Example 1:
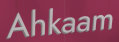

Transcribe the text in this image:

Ahkaam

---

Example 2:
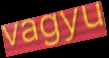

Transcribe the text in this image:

vagyu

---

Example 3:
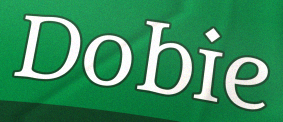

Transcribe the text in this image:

Dobie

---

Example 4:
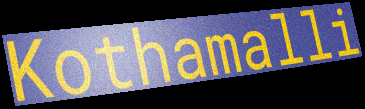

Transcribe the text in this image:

Kothamalli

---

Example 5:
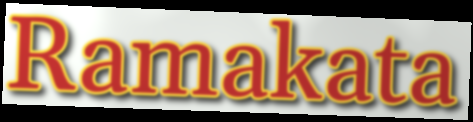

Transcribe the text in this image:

Ramakata